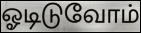
ஓடிடுவோம்